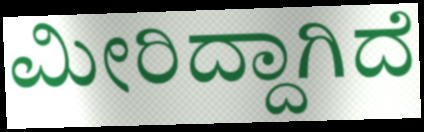
ಮೀರಿದ್ದಾಗಿದೆ